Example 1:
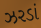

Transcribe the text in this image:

ઝરડાં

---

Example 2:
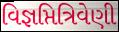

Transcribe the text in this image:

વિજ્ઞપ્તિત્રિવેણી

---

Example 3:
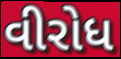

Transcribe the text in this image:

વીરોધ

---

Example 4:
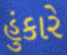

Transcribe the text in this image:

હુંકારે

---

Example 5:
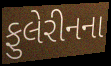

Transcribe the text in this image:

ફુલેરીનના